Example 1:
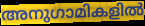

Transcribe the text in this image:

അനുഗാമികളിൽ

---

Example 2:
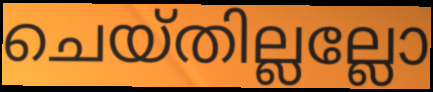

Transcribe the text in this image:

ചെയ്തില്ലല്ലോ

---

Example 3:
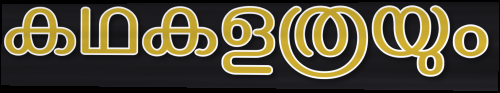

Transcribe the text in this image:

കഥകളത്രയും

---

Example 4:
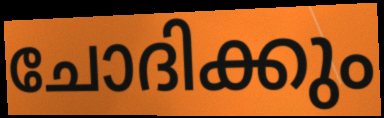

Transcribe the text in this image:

ചോദിക്കും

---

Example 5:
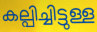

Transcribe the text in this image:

കല്പിച്ചിട്ടുള്ള